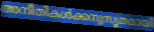
അനീതികൾക്കനുസൃതമായി